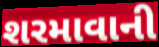
શરમાવાની